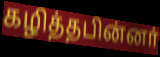
கழித்தபின்னர்